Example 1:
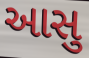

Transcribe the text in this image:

આસુ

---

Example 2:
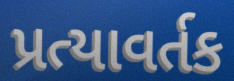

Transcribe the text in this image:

પ્રત્યાવર્તક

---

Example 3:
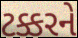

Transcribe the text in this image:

ટક્કરને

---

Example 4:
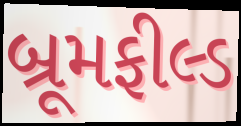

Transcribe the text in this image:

બ્રૂમફીલ્ડ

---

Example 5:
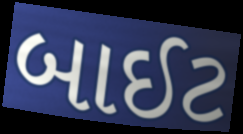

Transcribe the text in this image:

બાઈટ